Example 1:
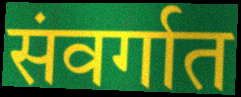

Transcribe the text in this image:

संवर्गात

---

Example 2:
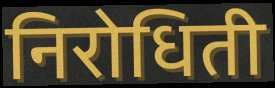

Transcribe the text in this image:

निरोधिती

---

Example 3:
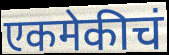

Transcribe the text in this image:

एकमेकीचं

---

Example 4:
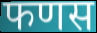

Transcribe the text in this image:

फणस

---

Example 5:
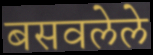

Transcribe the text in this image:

बसवलेले